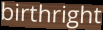
birthright